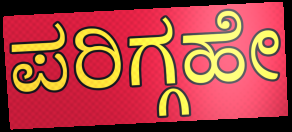
ಪರಿಗ್ಗಹೇ